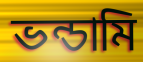
ভন্ডামি